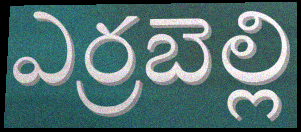
ఎర్రబెల్లి